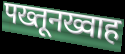
पख्तूनख्वाह